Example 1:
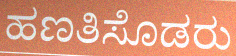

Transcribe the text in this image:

ಹಣತಿಸೊಡರು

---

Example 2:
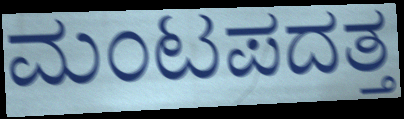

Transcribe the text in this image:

ಮಂಟಪದತ್ತ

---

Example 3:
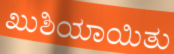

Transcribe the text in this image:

ಖುಶಿಯಾಯಿತು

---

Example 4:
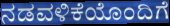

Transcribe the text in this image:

ನಡವಳಿಕೆಯೊಂದಿಗೆ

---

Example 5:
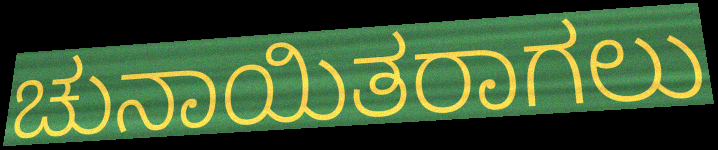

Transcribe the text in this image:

ಚುನಾಯಿತರಾಗಲು